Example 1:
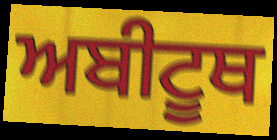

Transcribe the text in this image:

ਅਬੀਟੂਥ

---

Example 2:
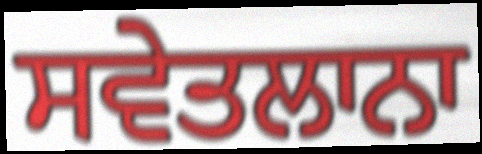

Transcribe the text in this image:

ਸਵੇਤਲਾਨਾ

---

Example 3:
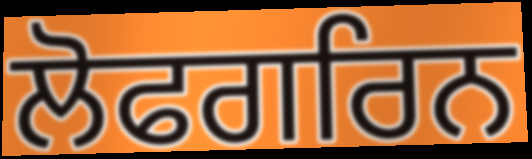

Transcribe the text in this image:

ਲੋਫਗਰਿਨ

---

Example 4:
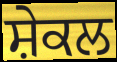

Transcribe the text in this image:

ਸ਼ੇਕਲ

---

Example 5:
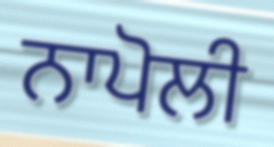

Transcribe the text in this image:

ਨਾਪੋਲੀ